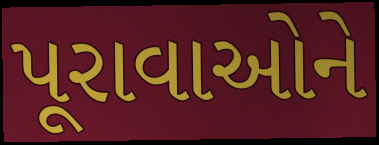
પૂરાવાઓને